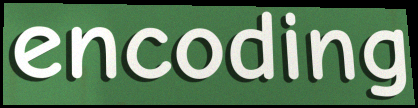
encoding